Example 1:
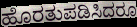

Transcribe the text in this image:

ಹೊರತುಪಡಿಸಿದರೂ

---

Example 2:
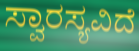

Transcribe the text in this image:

ಸ್ವಾರಸ್ಯವಿದೆ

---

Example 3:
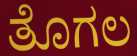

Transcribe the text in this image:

ತೊಗಲ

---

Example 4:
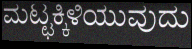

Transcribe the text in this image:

ಮಟ್ಟಕ್ಕಿಳಿಯುವುದು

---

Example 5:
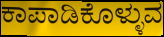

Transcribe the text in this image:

ಕಾಪಾಡಿಕೊಳ್ಳುವ